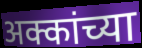
अक्कांच्या